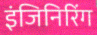
इंजिनिरिंग